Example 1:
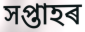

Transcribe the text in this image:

সপ্তাহৰ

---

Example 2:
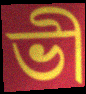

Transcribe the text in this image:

ভী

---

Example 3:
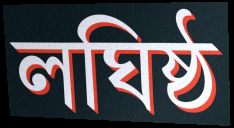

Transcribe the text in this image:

লঘিষ্ঠ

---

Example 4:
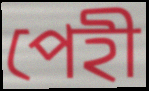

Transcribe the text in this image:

পেহী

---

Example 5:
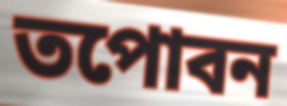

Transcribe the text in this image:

তপোবন